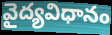
వైద్యవిధానం